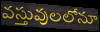
వస్తువులలోనూ